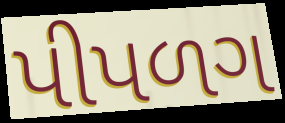
પીપળગ